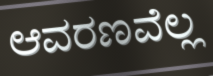
ಆವರಣವೆಲ್ಲ